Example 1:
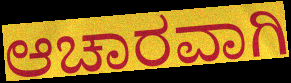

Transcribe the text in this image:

ಆಚಾರವಾಗಿ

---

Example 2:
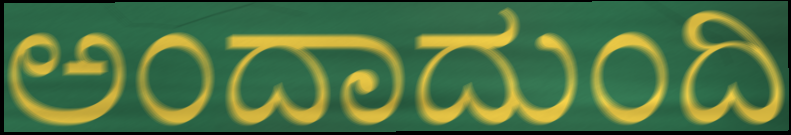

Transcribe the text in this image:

ಅಂದಾದುಂದಿ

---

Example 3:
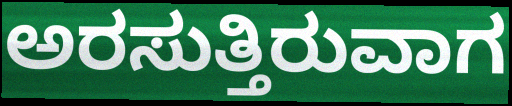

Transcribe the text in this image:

ಅರಸುತ್ತಿರುವಾಗ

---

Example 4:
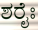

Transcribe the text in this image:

ಶರೈಃ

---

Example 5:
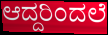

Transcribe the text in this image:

ಆದ್ದರಿಂದಲೆ